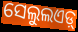
ସେଲୁଲଏଡ଼୍